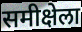
समीक्षेला